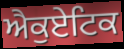
ਐਕੁਏਟਿਕ